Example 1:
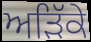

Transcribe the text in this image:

ਅੜਿੱਕੇ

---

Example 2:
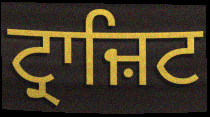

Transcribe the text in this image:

ਟ੍ਰਾਜ਼ਿਟ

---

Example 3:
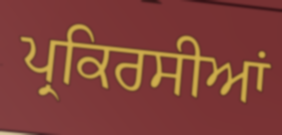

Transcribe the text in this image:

ਪ੍ਰਕਿਰਸੀਆਂ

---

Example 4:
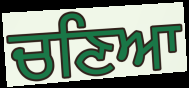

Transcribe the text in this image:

ਚਣਿਆ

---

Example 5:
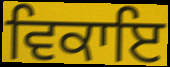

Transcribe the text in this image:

ਵਿਕਾਇ